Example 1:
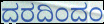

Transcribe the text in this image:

ದರದಿಂದಂ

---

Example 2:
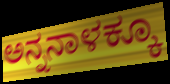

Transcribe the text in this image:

ಅನ್ನನಾಳಕ್ಕೂ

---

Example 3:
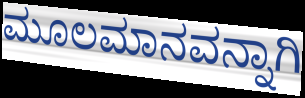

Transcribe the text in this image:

ಮೂಲಮಾನವನ್ನಾಗಿ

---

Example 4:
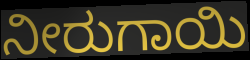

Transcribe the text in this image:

ನೀರುಗಾಯಿ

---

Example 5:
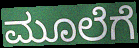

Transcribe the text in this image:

ಮೂಲೆಗೆ